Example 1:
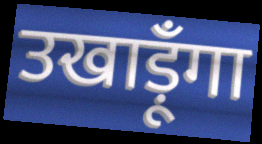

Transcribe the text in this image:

उखाड़ूँगा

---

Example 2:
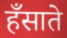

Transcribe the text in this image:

हँसाते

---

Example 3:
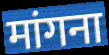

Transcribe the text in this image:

मांगना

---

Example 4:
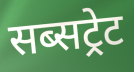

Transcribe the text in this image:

सब्सट्रेट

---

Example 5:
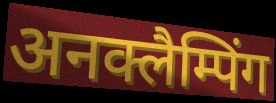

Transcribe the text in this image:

अनक्लैम्पिंग